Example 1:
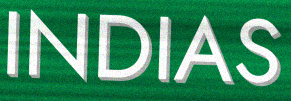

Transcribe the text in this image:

INDIAS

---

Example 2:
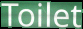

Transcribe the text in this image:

Toilet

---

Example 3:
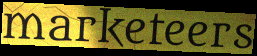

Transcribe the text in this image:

marketeers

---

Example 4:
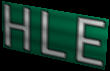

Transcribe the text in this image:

HLE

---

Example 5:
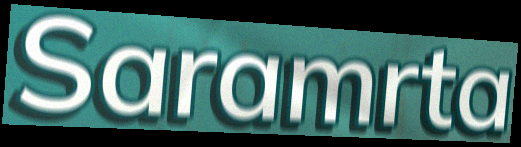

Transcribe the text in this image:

Saramrta